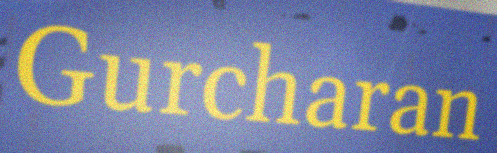
Gurcharan